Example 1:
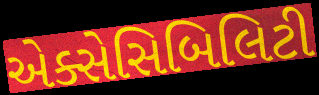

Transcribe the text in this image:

એક્સેસિબિલિટી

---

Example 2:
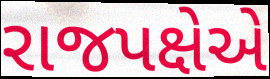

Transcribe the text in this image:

રાજપક્ષેએ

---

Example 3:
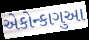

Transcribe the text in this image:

એકોન્કાગુઆ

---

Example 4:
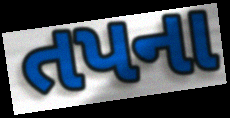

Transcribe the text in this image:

તપના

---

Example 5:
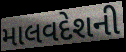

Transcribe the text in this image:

માલવદેશની